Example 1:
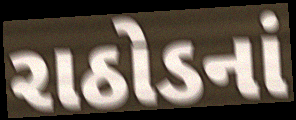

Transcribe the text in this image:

રાઠોડનાં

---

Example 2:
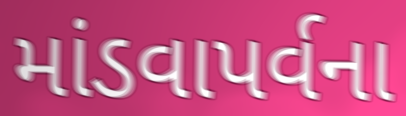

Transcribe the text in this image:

માંડવાપર્વના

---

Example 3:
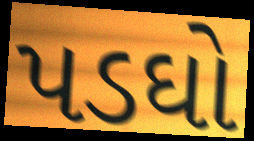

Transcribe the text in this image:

પડઘો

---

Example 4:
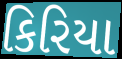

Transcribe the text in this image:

કિરિયા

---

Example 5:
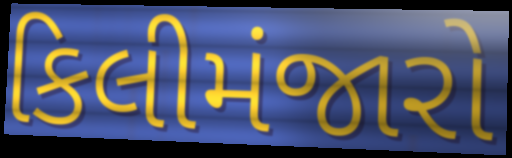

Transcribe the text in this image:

કિલીમંજારો